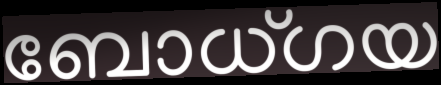
ബോധ്ഗയ